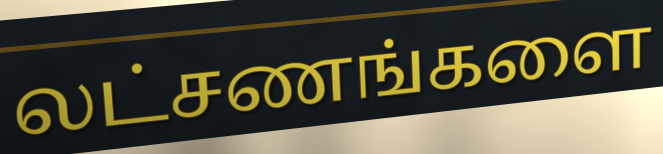
லட்சணங்களை